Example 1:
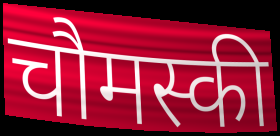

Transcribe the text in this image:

चौमस्की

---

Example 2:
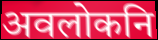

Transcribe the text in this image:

अवलोकनि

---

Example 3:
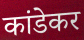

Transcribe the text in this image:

कांडेकर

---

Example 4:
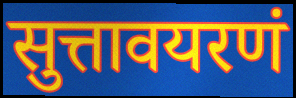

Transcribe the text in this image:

सुत्तावयरणं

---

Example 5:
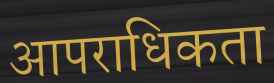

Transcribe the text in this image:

आपराधिकता